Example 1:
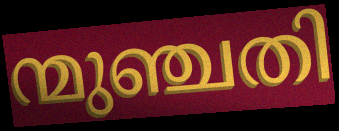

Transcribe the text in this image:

ന്മുഞ്ചതി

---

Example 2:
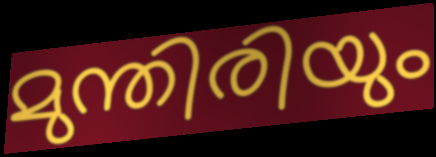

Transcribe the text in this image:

മുന്തിരിയും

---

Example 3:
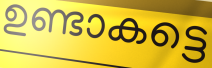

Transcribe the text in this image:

ഉണ്ടാകട്ടെ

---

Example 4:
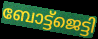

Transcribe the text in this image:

ബോട്ട്ജെട്ടി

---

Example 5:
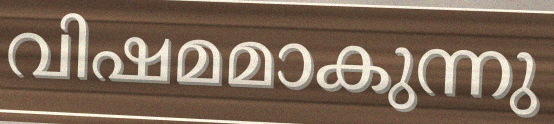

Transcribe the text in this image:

വിഷമമാകുന്നു